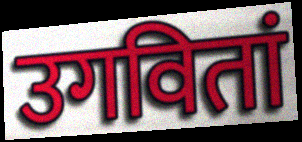
उगवितां